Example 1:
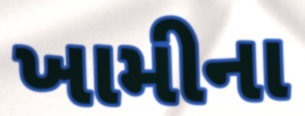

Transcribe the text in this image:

ખામીના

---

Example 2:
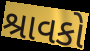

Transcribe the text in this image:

શ્રાવકો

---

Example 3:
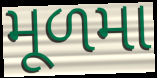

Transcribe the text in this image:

મૂળમા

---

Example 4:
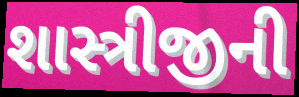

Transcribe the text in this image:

શાસ્ત્રીજીની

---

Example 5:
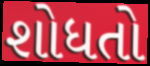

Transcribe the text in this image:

શોધતો